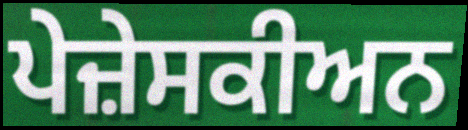
ਪੇਜ਼ੇਸਕੀਅਨ